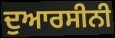
ਦੁਆਰਸੀਨੀ